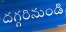
దగ్గరినుండి